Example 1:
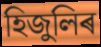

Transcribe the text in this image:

হিজুলিৰ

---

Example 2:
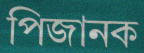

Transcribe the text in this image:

পিজানক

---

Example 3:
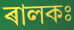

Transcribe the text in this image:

ৰালকঃ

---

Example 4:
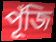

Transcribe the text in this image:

পূঁজি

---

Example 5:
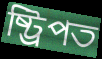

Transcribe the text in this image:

ষ্ট্ৰিপত